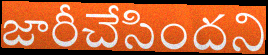
జారీచేసిందని